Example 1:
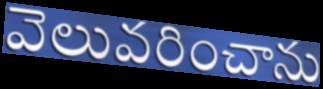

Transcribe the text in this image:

వెలువరించాను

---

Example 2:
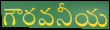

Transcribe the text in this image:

గౌరవనీయ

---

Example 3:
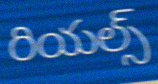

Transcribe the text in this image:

రియల్స్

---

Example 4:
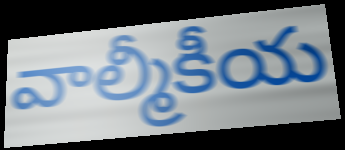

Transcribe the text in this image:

వాల్మీకీయ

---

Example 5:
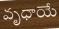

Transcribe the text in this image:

వృధాయే